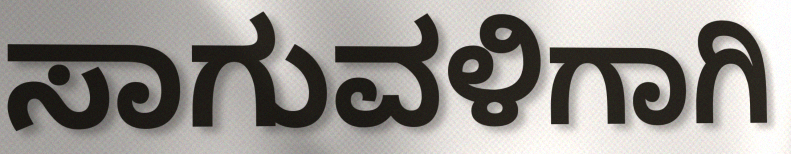
ಸಾಗುವಳಿಗಾಗಿ